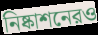
নিষ্কাশনেরও